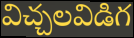
విచ్చలవిడిగ